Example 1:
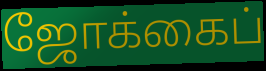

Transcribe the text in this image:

ஜோக்கைப்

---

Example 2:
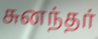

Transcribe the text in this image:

சுனந்தர்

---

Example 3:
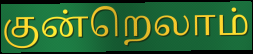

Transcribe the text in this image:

குன்றெலாம்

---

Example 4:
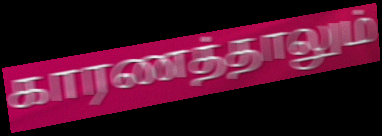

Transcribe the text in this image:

காரணத்தாலும்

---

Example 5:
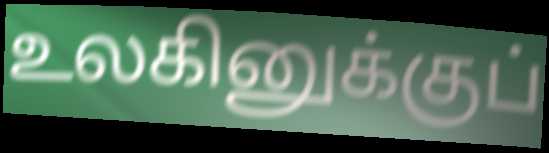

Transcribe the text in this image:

உலகினுக்குப்